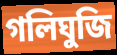
গলিঘুজি